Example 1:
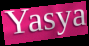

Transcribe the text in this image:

Yasya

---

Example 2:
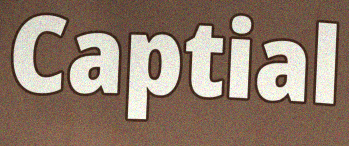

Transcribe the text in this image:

Captial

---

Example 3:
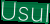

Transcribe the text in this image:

Usul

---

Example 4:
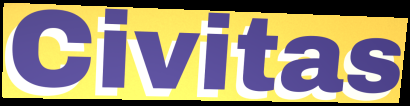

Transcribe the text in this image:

Civitas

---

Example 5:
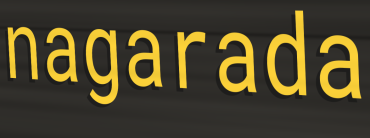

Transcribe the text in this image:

nagarada